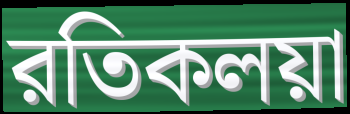
রতিকলয়া